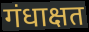
गंधाक्षत